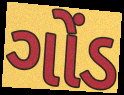
ગોંડ